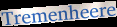
Tremenheere